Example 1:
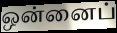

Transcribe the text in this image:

ஒன்னைப்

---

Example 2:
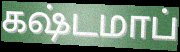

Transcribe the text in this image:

கஷ்டமாப்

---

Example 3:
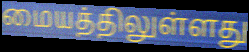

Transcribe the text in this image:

மையத்திலுள்ளது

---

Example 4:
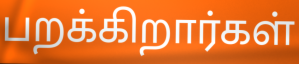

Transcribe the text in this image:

பறக்கிறார்கள்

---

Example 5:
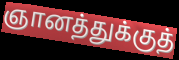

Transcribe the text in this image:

ஞானத்துக்குத்